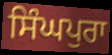
ਸਿੰਘਪੁਰਾ